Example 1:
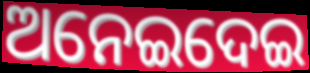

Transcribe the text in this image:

ଅନେଇଦେଇ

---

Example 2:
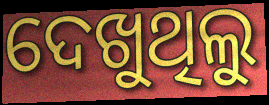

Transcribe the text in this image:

ଦେଖୁଥିଲୁ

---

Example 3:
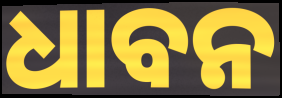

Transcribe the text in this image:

ଧାବନ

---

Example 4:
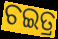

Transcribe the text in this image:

ଚଇତ୍ର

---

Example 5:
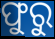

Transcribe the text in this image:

ଫୁରୁ